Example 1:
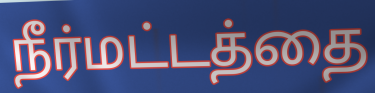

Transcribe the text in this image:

நீர்மட்டத்தை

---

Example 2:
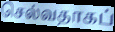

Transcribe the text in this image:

செல்வதாகப்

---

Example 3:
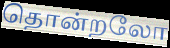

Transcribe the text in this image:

தொன்றலோ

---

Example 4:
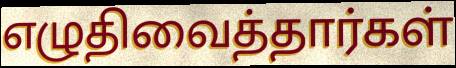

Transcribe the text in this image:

எழுதிவைத்தார்கள்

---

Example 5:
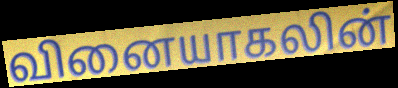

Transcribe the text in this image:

வினையாகலின்